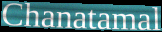
Chanatamal